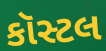
કૉસ્ટલ